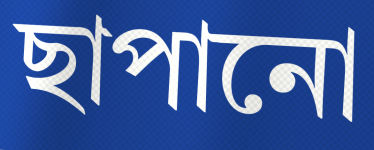
ছাপানো